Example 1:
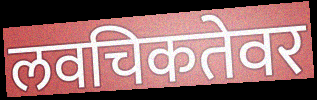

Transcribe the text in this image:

लवचिकतेवर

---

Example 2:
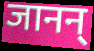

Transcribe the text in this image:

जानन्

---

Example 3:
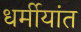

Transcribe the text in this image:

धर्मीयांत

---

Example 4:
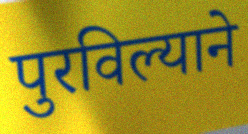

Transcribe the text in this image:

पुरविल्याने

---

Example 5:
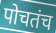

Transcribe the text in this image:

पोचतंच